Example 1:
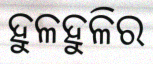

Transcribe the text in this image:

ହୁଳହୁଳିର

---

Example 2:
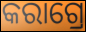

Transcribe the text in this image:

କରାଗ୍ରେ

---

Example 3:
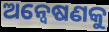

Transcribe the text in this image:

ଅନ୍ବେଷଣକୁ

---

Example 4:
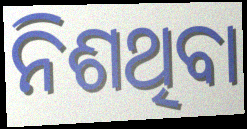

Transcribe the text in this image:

ନିଶଥିବା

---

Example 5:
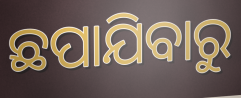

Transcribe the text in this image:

ଛପାଯିବାରୁ